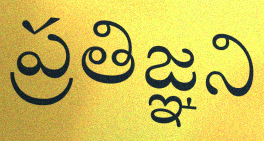
ప్రతిజ్ఞని